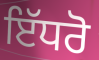
ਇੱਧਰੋ